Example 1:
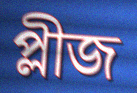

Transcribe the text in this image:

প্লীজ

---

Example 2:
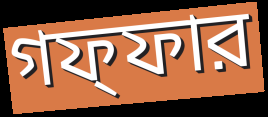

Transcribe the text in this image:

গফ্ফার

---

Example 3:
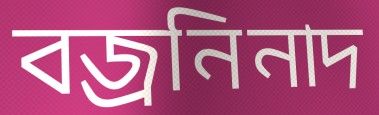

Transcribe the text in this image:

বজ্রনিনাদ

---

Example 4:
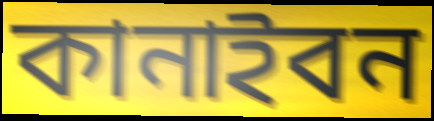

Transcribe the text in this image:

কানাইবন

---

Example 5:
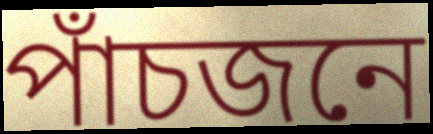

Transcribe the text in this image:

পাঁচজনে